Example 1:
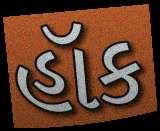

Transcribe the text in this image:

હૉક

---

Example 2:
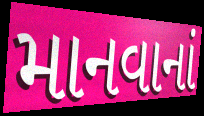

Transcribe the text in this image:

માનવાનાં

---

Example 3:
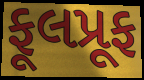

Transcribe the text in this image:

ફૂલપ્રૂફ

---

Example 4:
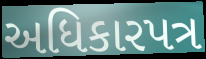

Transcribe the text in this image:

અધિકારપત્ર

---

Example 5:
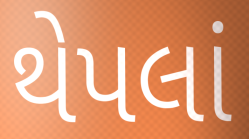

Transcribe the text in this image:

થેપલાં